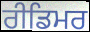
ਰੀਡਿਮਰ